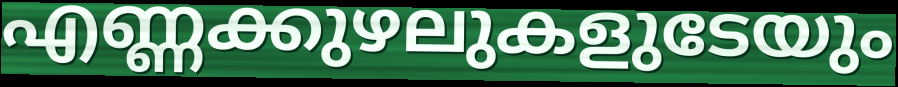
എണ്ണക്കുഴലുകളുടേയും